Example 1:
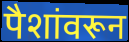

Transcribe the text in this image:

पैशांवरून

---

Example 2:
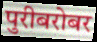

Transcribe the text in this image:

पुरीबरोबर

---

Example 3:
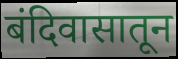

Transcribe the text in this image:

बंदिवासातून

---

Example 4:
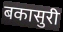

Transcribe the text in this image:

बकासुरी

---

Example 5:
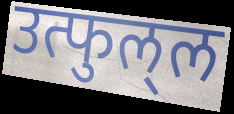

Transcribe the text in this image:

उत्फुल्ल